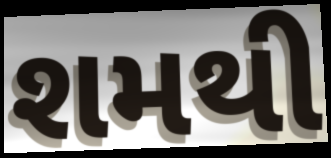
શમથી